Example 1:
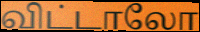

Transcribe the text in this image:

விட்டாலோ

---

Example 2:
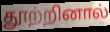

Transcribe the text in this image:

தூற்றினால்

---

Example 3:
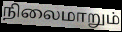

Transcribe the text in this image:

நிலைமாறும்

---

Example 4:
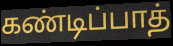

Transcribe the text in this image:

கண்டிப்பாத்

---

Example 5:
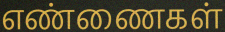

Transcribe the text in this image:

எண்ணைகள்